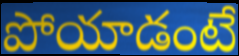
పోయాడంటే